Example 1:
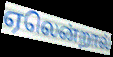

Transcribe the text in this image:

ஏலென்றால்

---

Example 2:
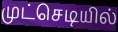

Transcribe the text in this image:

முட்செடியில்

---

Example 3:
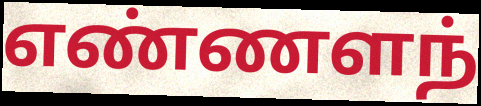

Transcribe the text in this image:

எண்ணளந்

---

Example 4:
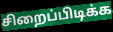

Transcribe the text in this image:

சிறைப்பிடிக்க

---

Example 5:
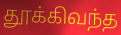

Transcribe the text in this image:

தூக்கிவந்த